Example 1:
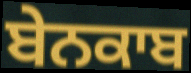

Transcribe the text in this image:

ਬੇਨਕਾਬ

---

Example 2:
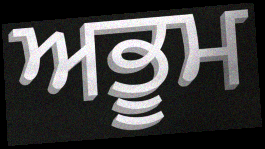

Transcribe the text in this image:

ਅਭੂਮ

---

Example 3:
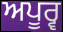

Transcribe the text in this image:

ਅਪੂਰ੍ਵ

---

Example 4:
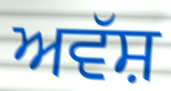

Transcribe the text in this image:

ਅਵੱਸ਼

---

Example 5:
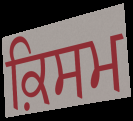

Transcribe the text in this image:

ਕ਼ਿਸਮ